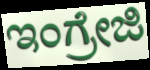
ಇಂಗ್ರೇಜಿ